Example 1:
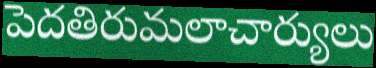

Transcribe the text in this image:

పెదతిరుమలాచార్యులు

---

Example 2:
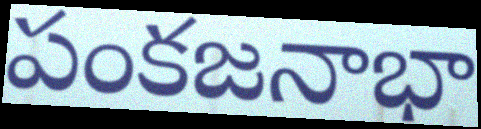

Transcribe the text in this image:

పంకజనాభా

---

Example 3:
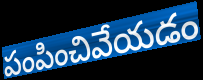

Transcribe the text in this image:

పంపించివేయడం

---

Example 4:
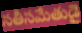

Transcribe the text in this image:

సతీసమేతుడై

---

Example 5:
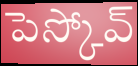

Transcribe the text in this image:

పెస్కోవ్